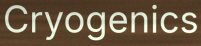
Cryogenics